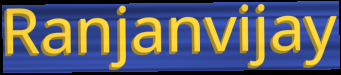
Ranjanvijay